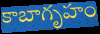
కాబాగృహం